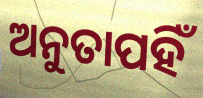
ଅନୁତାପହିଁ